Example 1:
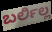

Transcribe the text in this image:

ಬರ್ಲಿಲ್ಲ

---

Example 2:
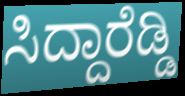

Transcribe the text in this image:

ಸಿದ್ದಾರೆಡ್ಡಿ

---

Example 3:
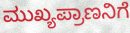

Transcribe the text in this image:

ಮುಖ್ಯಪ್ರಾಣನಿಗೆ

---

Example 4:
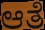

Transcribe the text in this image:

ಆತೆ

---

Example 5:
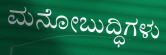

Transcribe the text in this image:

ಮನೋಬುದ್ಧಿಗಳು